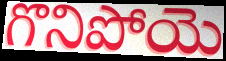
గొనిపోయె